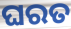
ଘରତ